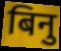
बिनु